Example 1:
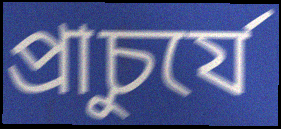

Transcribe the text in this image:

প্রাচুর্যে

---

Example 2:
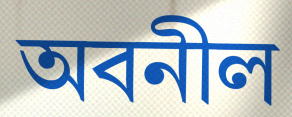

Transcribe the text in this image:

অবনীল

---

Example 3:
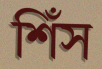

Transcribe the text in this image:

শিঁস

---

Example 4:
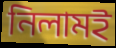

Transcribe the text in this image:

নিলামই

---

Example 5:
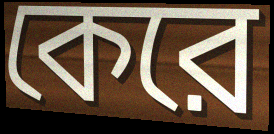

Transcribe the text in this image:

কেরে